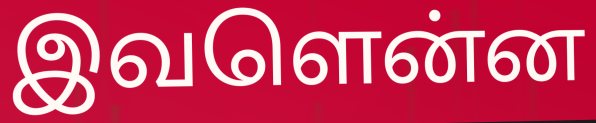
இவளென்ன